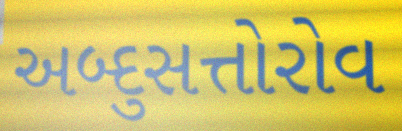
અબ્દુસત્તોરોવ